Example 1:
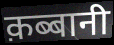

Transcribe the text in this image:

क़ब्बानी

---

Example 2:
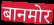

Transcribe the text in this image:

बानमोर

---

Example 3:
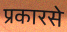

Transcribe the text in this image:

प्रकारसे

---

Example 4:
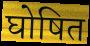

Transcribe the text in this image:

घोषित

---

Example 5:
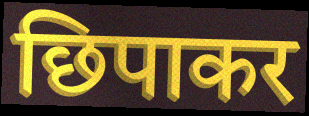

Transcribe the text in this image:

छिपाकर